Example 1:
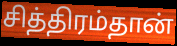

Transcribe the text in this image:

சித்திரம்தான்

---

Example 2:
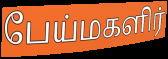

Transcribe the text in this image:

பேய்மகளிர்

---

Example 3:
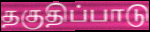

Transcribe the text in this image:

தகுதிப்பாடு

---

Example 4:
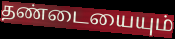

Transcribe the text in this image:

தண்டையையும்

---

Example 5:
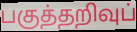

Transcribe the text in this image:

பகுத்தறிவுப்